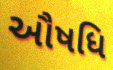
ઔષધિ